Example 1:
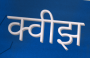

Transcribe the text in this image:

क्वीझ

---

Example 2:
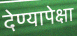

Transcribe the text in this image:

देण्यापेक्षा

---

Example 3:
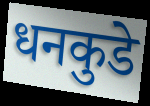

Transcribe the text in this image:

धनकुडे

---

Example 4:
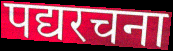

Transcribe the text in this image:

पद्यरचना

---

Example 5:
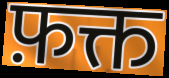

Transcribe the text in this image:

फ़क्त